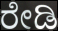
ರೇಡಿ